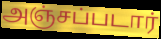
அஞ்சப்படார்